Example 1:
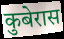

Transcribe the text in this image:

कुबेरास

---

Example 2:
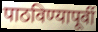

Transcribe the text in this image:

पाठविण्यापूर्वी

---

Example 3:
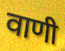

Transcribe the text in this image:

वाणी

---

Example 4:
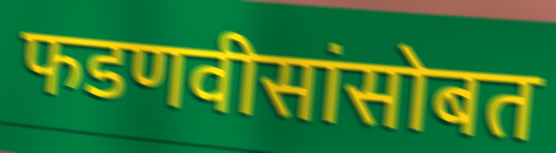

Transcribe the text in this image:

फडणवीसांसोबत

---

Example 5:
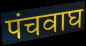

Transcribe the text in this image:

पंचवाघ